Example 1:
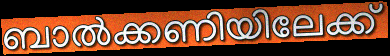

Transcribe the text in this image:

ബാൽക്കണിയിലേക്ക്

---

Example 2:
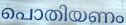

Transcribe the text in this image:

പൊതിയണം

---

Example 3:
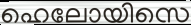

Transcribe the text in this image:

ഹെലോയിസെ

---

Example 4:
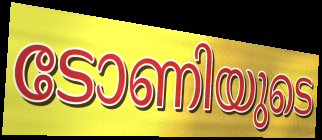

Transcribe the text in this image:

ടോണിയുടെ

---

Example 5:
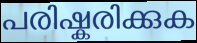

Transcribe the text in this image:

പരിഷ്കരിക്കുക